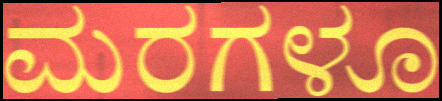
ಮರಗಳೂ